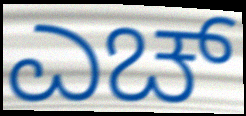
ಎಚ್